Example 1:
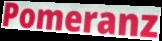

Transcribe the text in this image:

Pomeranz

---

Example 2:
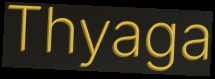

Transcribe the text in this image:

Thyaga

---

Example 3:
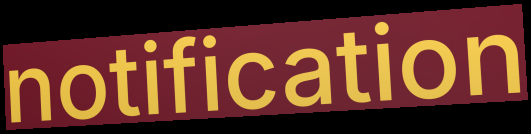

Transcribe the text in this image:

notification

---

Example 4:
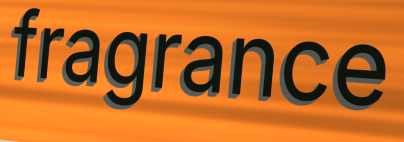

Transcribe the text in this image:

fragrance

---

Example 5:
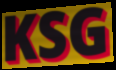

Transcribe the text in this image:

KSG